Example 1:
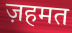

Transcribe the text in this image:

ज़हमत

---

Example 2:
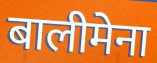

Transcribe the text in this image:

बालीमेना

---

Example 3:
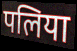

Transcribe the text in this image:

पलिया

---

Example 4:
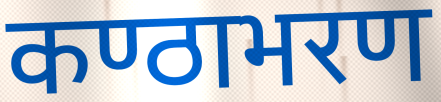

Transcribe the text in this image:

कण्ठाभरण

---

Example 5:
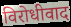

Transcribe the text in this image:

विरोधीवाद